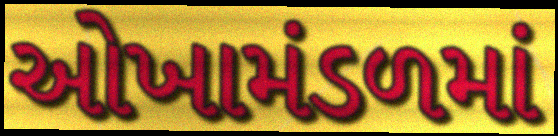
ઓખામંડળમાં